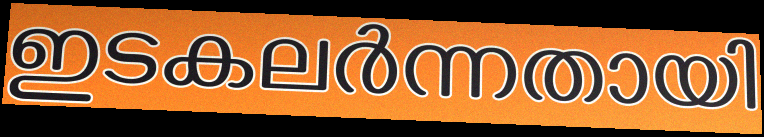
ഇടകലർന്നതായി